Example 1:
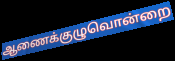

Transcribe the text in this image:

ஆணைக்குழுவொன்றை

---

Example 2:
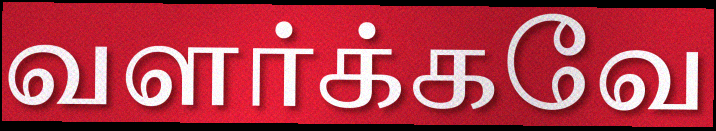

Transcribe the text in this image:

வளர்க்கவே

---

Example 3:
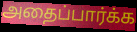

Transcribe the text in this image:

அதைப்பார்க்க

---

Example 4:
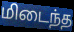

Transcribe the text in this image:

மிடைந்த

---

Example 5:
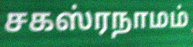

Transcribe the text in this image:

சகஸ்ரநாமம்